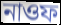
নাওফ